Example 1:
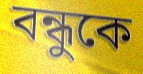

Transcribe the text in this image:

বন্ধুকে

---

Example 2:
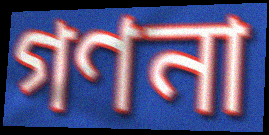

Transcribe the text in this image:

গণনা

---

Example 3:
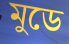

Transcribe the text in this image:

মুডে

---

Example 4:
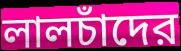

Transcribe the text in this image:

লালচাঁদের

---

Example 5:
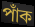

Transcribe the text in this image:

পাঁক